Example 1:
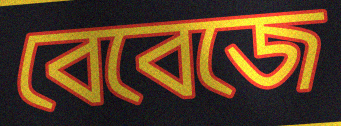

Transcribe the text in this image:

বেবেজে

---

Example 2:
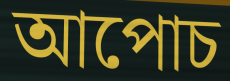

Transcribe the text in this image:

আপোচ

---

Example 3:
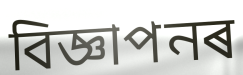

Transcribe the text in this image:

বিজ্ঞাপনৰ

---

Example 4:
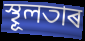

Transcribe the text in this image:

স্থূলতাৰ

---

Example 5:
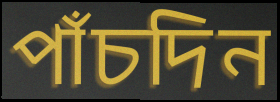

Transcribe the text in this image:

পাঁচদিন